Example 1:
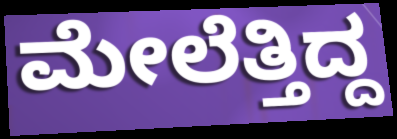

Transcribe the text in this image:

ಮೇಲೆತ್ತಿದ್ದ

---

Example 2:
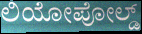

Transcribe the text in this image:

ಲಿಯೋಪೋಲ್ಡ್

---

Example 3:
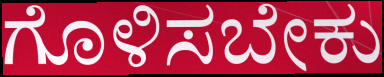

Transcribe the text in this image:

ಗೊಳಿಸಬೇಕು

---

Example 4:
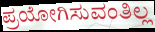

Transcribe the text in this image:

ಪ್ರಯೋಗಿಸುವಂತಿಲ್ಲ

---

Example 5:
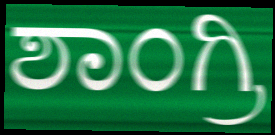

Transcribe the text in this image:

ಶಾಂಗ್ರಿ